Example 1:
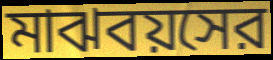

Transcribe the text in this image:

মাঝবয়সের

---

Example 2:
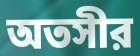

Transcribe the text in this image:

অতসীর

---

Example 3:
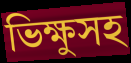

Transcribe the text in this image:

ভিক্ষুসহ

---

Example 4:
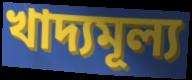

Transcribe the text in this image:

খাদ্যমূল্য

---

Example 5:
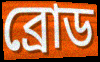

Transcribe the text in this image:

ব্রোড